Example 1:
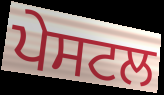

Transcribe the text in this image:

ਪੇਸਟਲ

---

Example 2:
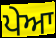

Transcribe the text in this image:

ਪੇਆ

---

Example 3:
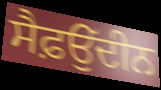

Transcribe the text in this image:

ਸੈਫ਼ਉੱਦੀਨ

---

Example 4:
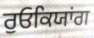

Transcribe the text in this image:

ਰੁਓਕਿਯਾਂਗ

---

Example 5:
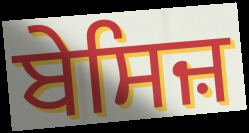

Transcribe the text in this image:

ਬੇਸਿਜ਼